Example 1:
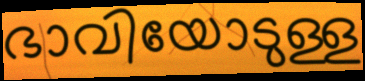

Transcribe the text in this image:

ഭാവിയോടുള്ള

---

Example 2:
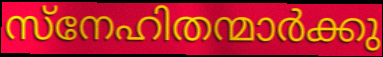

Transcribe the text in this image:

സ്നേഹിതന്മാർക്കു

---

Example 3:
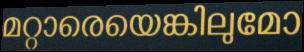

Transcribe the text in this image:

മറ്റാരെയെങ്കിലുമോ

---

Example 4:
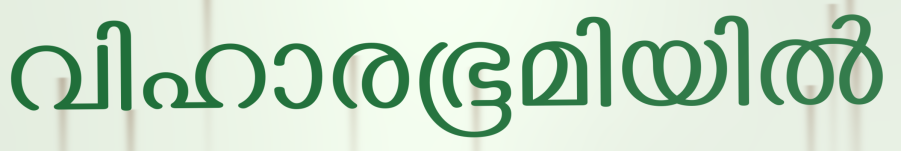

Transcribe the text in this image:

വിഹാരഭൂമിയിൽ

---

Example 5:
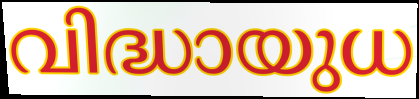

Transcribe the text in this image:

വിദ്ധായുധ